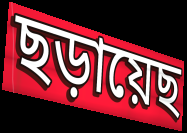
ছড়ায়েছ